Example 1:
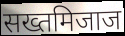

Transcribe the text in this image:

सख्तमिजाज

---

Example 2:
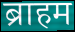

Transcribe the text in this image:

ब्राहम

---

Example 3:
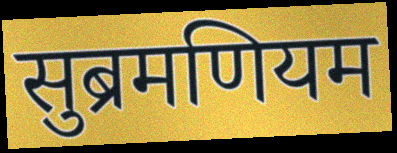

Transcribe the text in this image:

सुब्रमणियम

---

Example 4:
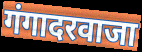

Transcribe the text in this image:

गंगादरवाजा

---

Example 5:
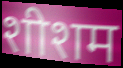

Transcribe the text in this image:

शीशम